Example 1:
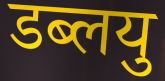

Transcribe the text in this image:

डब्लयु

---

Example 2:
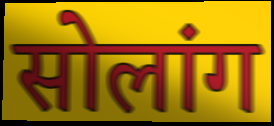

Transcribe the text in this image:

सोलांग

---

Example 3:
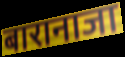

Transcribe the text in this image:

बारानाजा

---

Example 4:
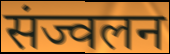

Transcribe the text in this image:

संज्वलन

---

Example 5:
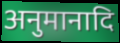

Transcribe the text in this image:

अनुमानादि